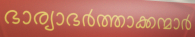
ഭാര്യാഭർത്താക്കന്മാർ